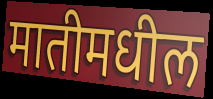
मातीमधील